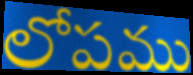
లోపము